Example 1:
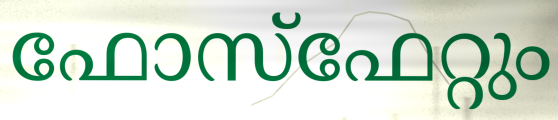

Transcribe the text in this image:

ഫോസ്ഫേറ്റും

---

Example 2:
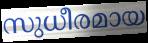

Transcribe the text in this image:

സുധീരമായ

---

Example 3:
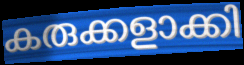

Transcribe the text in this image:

കരുക്കളാക്കി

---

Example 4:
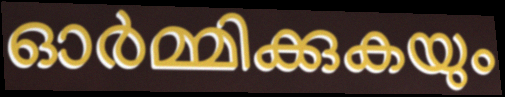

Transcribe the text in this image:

ഓർമ്മിക്കുകയും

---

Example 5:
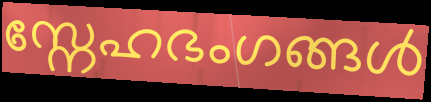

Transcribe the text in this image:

സ്നേഹഭംഗങ്ങൾ